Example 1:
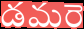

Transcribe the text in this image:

డమరె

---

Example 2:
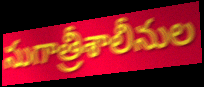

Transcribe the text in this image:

సుగాత్రీశాలీనుల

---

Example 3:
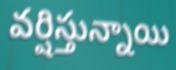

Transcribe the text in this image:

వర్షిస్తున్నాయి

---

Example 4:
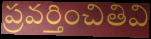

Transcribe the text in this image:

ప్రవర్తించితివి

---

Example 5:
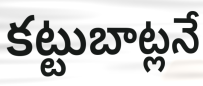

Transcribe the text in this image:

కట్టుబాట్లనే